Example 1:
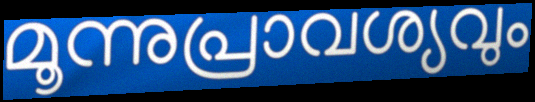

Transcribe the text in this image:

മൂന്നുപ്രാവശ്യവും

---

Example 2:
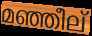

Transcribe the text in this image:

മഞ്ഞീല്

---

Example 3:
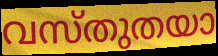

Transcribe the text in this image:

വസ്തുതയാ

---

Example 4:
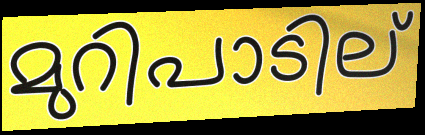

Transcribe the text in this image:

മുറിപാടില്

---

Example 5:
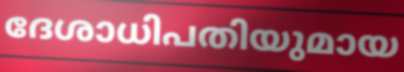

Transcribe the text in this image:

ദേശാധിപതിയുമായ